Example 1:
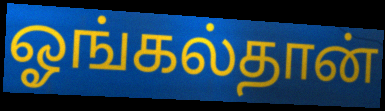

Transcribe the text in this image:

ஓங்கல்தான்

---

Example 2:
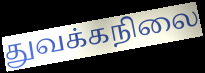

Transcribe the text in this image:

துவக்கநிலை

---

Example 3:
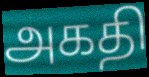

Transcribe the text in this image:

அகதி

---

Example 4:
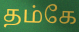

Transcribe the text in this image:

தம்கே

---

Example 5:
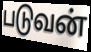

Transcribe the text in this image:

படுவன்